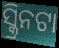
ସ୍କ୍ରିନଟା